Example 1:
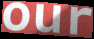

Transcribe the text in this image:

our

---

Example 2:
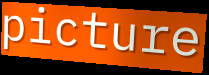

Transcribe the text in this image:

picture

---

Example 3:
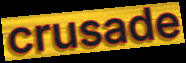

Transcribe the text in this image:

crusade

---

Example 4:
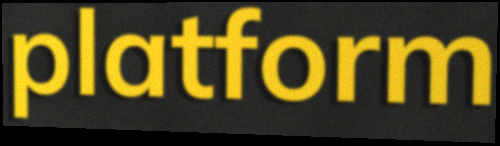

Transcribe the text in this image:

platform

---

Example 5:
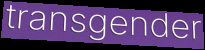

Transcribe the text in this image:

transgender